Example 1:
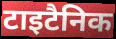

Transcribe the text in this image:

टाइटैनिक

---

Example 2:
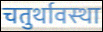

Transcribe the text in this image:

चतुर्थावस्था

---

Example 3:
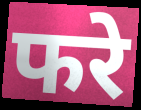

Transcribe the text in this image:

फरे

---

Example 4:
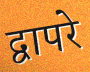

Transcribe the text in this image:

द्वापरे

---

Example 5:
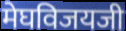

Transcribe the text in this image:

मेघविजयजी